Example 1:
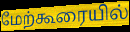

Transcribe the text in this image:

மேற்கூரையில்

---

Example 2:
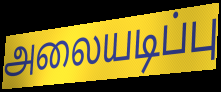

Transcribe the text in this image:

அலையடிப்பு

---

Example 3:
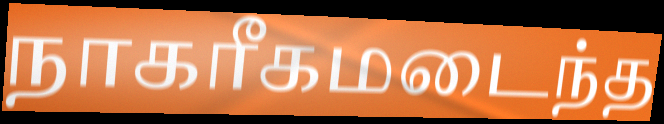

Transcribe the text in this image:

நாகரீகமடைந்த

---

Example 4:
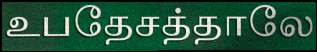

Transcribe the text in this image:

உபதேசத்தாலே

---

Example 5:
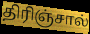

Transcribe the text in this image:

திரிஞ்சால்